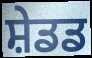
ਸ਼ੇਡਡ